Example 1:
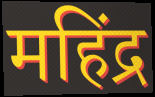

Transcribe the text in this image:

महिंद्र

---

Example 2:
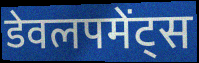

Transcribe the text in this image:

डेवलपमेंट्स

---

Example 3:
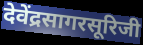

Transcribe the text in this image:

देवेंद्रसागरसूरिजी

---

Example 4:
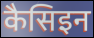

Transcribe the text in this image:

कैसिइन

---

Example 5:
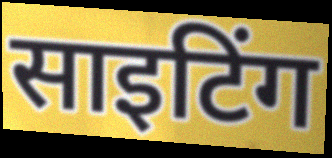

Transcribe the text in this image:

साइटिंग